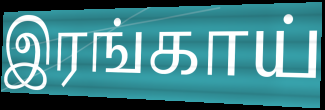
இரங்காய்